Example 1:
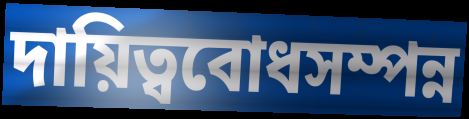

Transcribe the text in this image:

দায়িত্ববোধসম্পন্ন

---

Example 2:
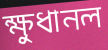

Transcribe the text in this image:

ক্ষুধানল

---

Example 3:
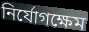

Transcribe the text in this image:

নির্যোগক্ষেম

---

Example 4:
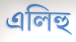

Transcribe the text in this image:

এলিহু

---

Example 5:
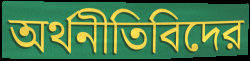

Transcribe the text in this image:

অর্থনীতিবিদের